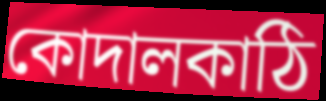
কোদালকাঠি